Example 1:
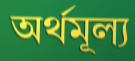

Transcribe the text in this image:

অর্থমূল্য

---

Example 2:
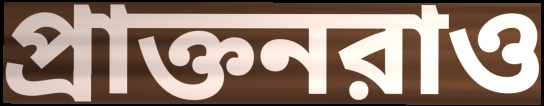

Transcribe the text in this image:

প্রাক্তনরাও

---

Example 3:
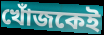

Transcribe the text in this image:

খোঁজকেই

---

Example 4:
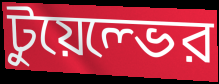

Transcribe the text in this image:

টুয়েল্ভের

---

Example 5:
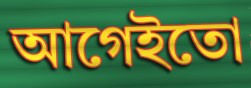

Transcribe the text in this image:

আগেইতো